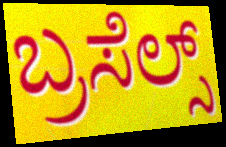
ಬ್ರಸೆಲ್ಸ್